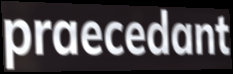
praecedant